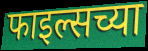
फाइल्सच्या